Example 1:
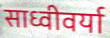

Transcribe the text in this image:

साध्वीवर्या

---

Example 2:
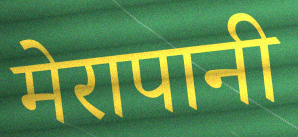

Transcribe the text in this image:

मेरापानी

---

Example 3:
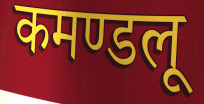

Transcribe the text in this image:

कमण्डलू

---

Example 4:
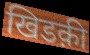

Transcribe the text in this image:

खिडक़ी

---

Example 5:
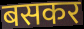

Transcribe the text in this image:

बसकर